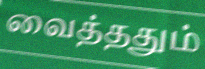
வைத்ததும்